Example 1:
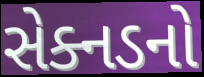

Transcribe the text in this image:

સેક્નડનો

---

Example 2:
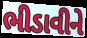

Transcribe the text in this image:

ભીડાવીને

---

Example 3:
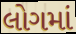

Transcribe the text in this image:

લોગમાં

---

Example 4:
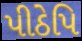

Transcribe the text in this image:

પીઠેપિ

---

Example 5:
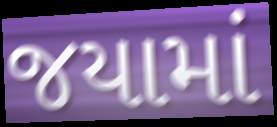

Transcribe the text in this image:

જયામાં